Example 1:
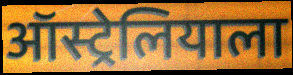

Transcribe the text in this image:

ऑस्ट्रेलियाला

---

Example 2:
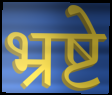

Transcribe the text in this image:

भ्रष्टे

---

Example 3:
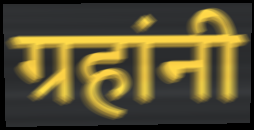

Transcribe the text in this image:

ग्रहांनी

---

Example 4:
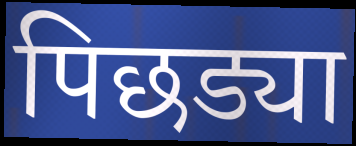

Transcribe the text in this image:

पिछड्या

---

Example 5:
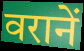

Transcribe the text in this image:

वरानें